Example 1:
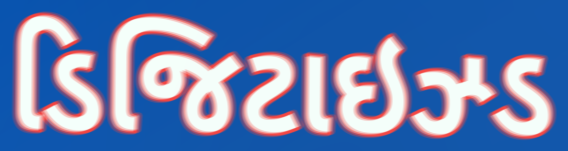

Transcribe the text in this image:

ડિજિટાઇઝ્ડ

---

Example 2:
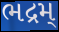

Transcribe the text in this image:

ભદ્રમ્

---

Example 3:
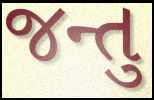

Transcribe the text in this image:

જન્તુ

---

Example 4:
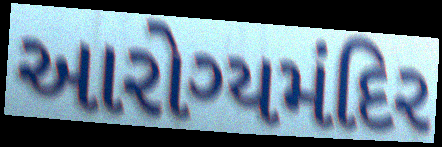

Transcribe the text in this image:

આરોગ્યમંદિર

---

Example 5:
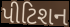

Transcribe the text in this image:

પીટિશન